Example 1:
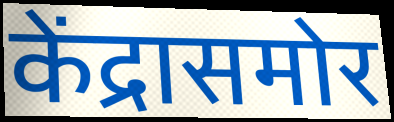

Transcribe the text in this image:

केंद्रासमोर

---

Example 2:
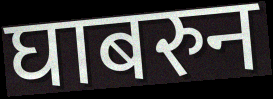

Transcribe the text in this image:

घाबरुन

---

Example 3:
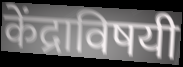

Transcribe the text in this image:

केंद्राविषयी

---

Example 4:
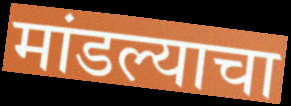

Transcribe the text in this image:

मांडल्याचा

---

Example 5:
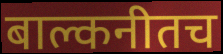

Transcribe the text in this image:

बाल्कनीतच